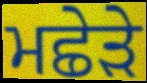
ਮਛੇੜੇ